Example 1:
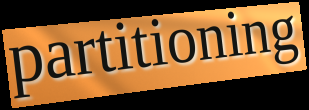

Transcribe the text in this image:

partitioning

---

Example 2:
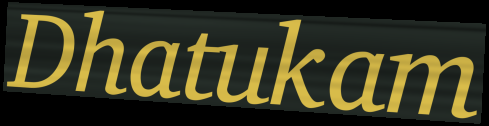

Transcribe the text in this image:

Dhatukam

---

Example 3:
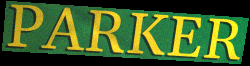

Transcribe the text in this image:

PARKER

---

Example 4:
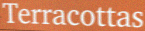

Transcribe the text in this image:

Terracottas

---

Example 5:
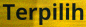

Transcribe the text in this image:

Terpilih